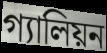
গ্যালিয়ন